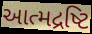
આત્મદ્રષ્ટિ